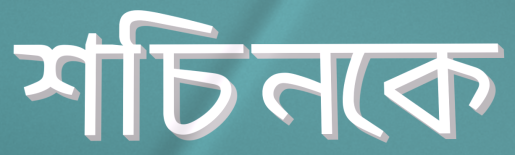
শচিনকে